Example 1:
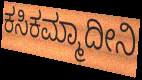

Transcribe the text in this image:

ಕಸಿಕಮ್ಮಾದೀನಿ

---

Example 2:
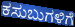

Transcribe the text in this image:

ಕಸುಬುಗಳಿಗೆ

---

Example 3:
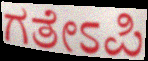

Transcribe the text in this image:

ಗತೇಽಪಿ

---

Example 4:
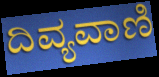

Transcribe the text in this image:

ದಿವ್ಯವಾಣಿ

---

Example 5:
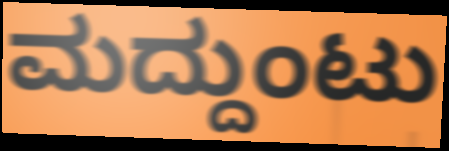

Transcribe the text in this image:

ಮದ್ದುಂಟು